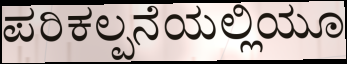
ಪರಿಕಲ್ಪನೆಯಲ್ಲಿಯೂ